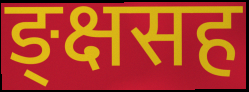
ङ्क्षसह